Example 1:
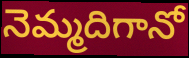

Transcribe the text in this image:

నెమ్మదిగానో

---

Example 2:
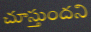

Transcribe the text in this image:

చూస్తుందని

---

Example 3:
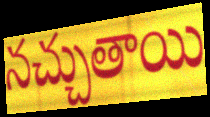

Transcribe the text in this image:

నచ్చుతాయి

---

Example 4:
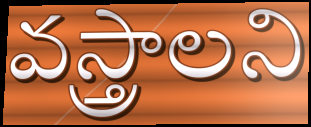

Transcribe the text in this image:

వస్త్రాలని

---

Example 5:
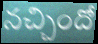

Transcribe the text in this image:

నచ్చిందో